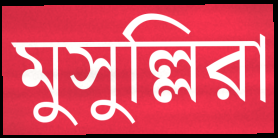
মুসুল্লিরা